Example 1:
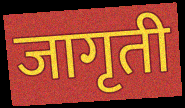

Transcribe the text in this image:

जागृती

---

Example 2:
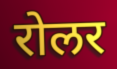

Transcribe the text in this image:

रोलर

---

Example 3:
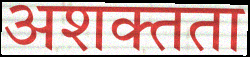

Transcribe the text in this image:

अशक्‍तता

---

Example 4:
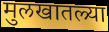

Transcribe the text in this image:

मुलखातल्या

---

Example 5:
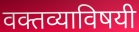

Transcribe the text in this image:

वक्तव्याविषयी